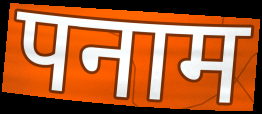
पनाम